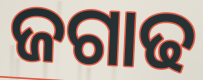
ଜଗାଢ